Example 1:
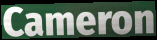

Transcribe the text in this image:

Cameron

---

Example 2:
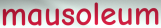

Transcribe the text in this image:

mausoleum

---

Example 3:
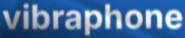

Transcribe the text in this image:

vibraphone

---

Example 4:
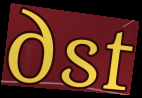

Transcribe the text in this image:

dst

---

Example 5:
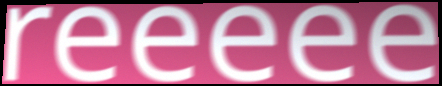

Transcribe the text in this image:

reeeee